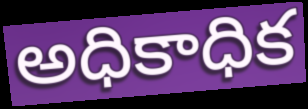
అధికాధిక